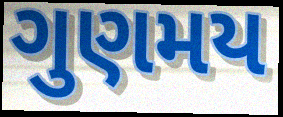
ગુણમય